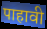
पाहावी